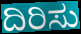
ದಿರಿಸು